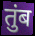
तुंब